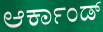
ಆರ್ಕಾಂಡ್